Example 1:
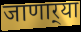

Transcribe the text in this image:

जाणार्या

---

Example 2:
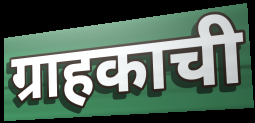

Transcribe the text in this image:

ग्राहकाची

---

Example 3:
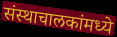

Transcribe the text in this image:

संस्थाचालकांमध्ये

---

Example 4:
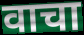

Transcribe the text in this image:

वाचा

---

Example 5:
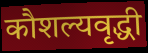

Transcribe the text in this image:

कौशल्यवृद्धी